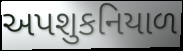
અપશુકનિયાળ